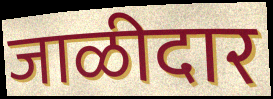
जाळीदार